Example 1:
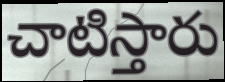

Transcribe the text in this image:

చాటిస్తారు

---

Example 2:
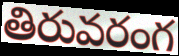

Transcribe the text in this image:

తిరువరంగ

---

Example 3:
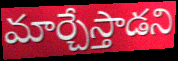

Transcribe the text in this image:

మార్చేస్తాడని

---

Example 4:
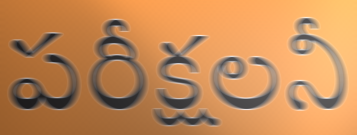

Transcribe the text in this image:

పరీక్షలనీ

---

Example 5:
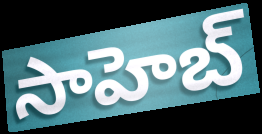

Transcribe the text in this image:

సాహెబ్